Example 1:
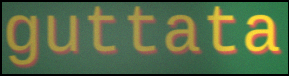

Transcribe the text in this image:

guttata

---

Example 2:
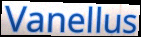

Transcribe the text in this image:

Vanellus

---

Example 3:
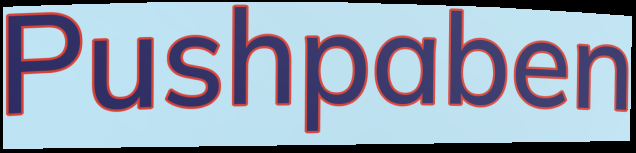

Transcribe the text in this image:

Pushpaben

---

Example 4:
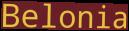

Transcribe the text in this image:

Belonia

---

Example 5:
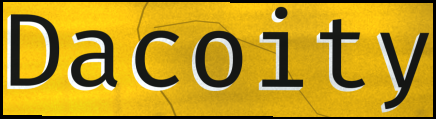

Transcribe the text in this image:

Dacoity